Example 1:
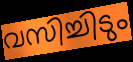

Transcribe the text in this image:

വസിച്ചിടും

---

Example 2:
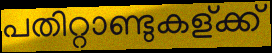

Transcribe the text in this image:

പതിറ്റാണ്ടുകള്ക്ക്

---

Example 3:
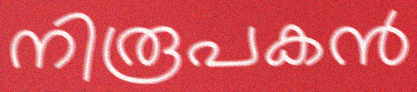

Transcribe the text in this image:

നിരൂപകൻ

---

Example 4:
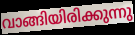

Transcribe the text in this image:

വാങ്ങിയിരിക്കുന്നു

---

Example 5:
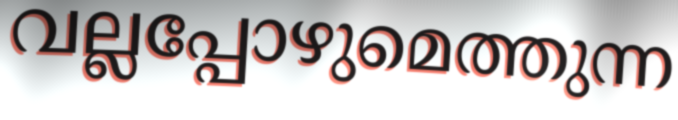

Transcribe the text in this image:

വല്ലപ്പോഴുമെത്തുന്ന